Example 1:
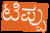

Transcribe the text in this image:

ಟಿಪ್ಪು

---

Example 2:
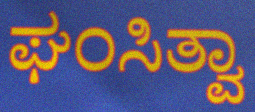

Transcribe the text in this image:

ಘಂಸಿತ್ವಾ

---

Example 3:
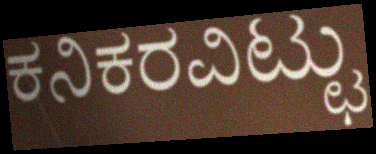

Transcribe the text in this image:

ಕನಿಕರವಿಟ್ಟು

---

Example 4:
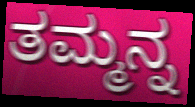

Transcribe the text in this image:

ತಮ್ಮನ್ನ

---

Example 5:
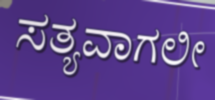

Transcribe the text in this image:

ಸತ್ಯವಾಗಲೀ